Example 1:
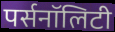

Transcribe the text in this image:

पर्सनॉलिटी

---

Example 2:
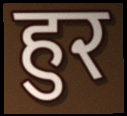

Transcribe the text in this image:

हुर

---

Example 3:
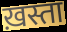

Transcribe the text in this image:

ख़स्ता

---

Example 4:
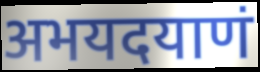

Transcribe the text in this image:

अभयदयाणं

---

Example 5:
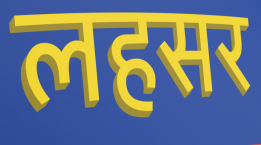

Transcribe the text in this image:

लहसर